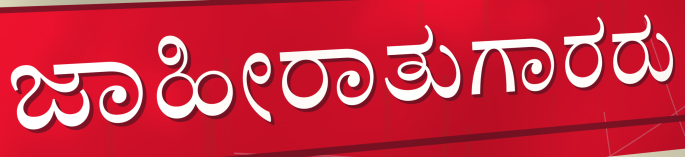
ಜಾಹೀರಾತುಗಾರರು